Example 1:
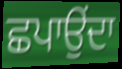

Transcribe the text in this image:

ਛਪਾਉਂਦਾ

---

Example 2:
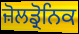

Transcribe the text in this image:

ਜ਼ੋਲਡ੍ਰੋਨਿਕ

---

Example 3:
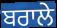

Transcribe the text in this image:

ਬਰਾਲੇ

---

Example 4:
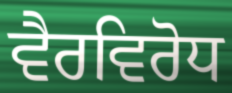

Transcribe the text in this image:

ਵੈਰਵਿਰੋਧ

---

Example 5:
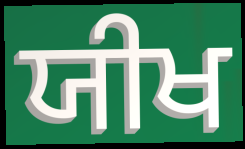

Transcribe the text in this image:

ਯੀਖ